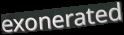
exonerated